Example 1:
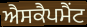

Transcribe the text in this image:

ਐਸਕੈਪਮੈਂਟ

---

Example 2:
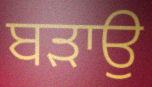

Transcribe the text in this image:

ਬਡ਼ਾਉ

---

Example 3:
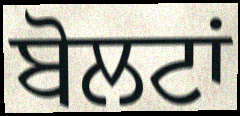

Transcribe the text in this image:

ਬੋਲਟਾਂ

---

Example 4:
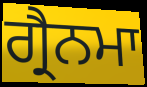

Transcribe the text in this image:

ਗ੍ਰੈਨਮਾ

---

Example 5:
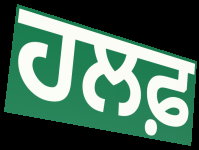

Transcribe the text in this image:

ਹਲਫ਼